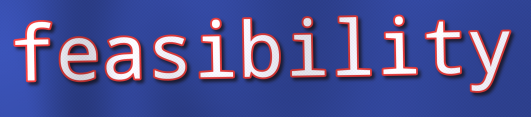
feasibility